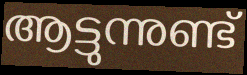
ആട്ടുന്നുണ്ട്